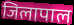
जिलापाल